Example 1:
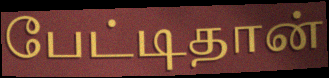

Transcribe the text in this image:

பேட்டிதான்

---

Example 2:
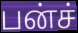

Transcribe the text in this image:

பன்ச்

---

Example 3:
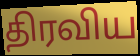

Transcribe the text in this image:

திரவிய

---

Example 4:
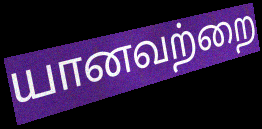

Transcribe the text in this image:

யானவற்றை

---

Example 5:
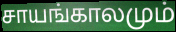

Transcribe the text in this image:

சாயங்காலமும்